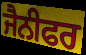
ਜੈਨੀਫਰ